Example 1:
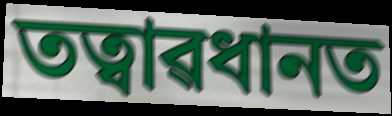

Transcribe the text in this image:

তত্বাৱধানত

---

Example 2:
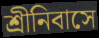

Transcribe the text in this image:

শ্ৰীনিবাসে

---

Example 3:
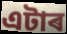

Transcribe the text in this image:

এটাৰ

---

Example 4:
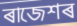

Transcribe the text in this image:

ৰাজেশৰ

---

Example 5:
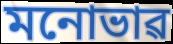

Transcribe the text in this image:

মনোভাৱ